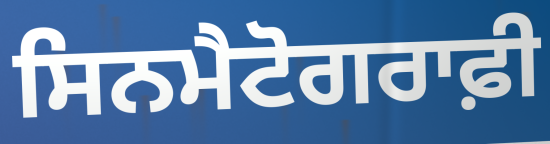
ਸਿਨਮੈਟੋਗਰਾਫ਼ੀ